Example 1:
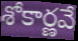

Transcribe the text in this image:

శోకార్ణవే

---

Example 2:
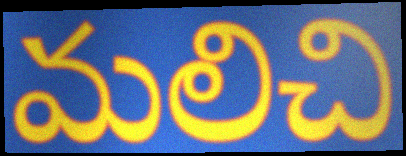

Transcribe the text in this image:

మలిచి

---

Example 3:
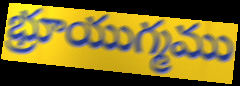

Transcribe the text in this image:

భ్రూయుగ్మము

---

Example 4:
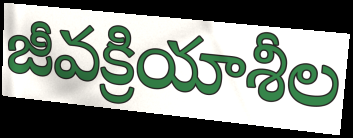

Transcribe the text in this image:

జీవక్రియాశీల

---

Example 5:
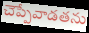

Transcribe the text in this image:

చెప్పేవాడతను